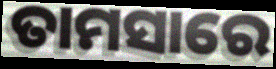
ତାମସାରେ